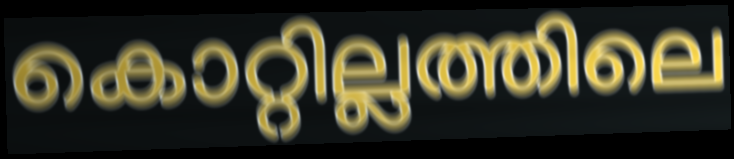
കൊറ്റില്ലത്തിലെ